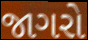
જાગરો